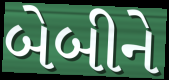
બેબીને